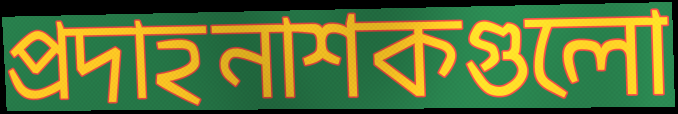
প্রদাহনাশকগুলো